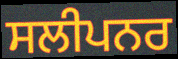
ਸਲੀਪਨਰ